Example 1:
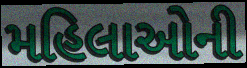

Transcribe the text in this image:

મહિલાઓની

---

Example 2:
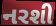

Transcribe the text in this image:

નરશી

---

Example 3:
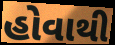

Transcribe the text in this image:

હોવાથી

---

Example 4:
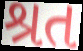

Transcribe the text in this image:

શ્રત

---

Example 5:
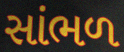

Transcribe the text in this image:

સાંભળ